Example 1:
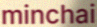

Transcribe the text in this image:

minchai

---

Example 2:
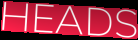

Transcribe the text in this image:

HEADS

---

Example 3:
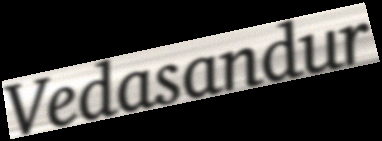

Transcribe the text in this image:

Vedasandur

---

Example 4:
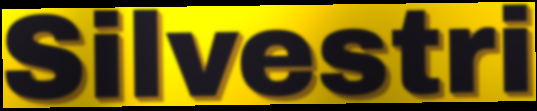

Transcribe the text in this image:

Silvestri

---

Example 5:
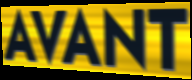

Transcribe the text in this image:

AVANT